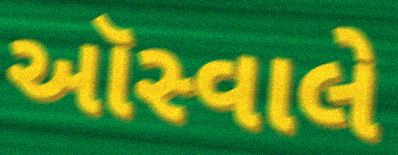
ઑસ્વાલે